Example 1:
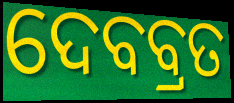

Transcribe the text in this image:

ଦେବବ୍ରତ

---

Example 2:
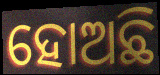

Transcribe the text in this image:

ହୋଅଛି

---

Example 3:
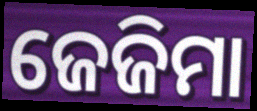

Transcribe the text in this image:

ଜେଜିମା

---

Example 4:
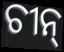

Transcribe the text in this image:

ଚୀନ୍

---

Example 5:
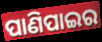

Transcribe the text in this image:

ପାଣିପାଇର